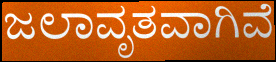
ಜಲಾವೃತವಾಗಿವೆ